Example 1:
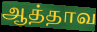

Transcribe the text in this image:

ஆத்தாவ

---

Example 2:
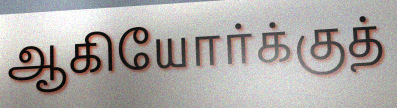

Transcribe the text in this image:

ஆகியோர்க்குத்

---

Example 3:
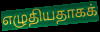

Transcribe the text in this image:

எழுதியதாகக்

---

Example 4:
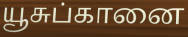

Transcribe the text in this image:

யூசுப்கானை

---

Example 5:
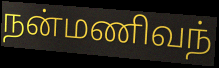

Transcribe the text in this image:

நன்மணிவந்